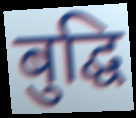
बुद्घि